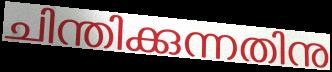
ചിന്തിക്കുന്നതിനു